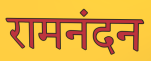
रामनंदन